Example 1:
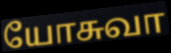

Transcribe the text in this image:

யோசுவா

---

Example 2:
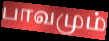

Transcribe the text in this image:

பாவமும்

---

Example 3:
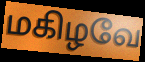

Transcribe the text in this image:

மகிழவே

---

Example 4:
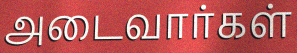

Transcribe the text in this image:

அடைவார்கள்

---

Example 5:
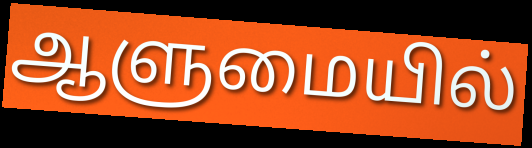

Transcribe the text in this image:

ஆளுமையில்